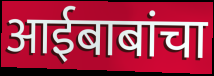
आईबाबांचा